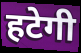
हटेगी